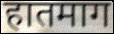
हातमाग